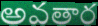
అవతార